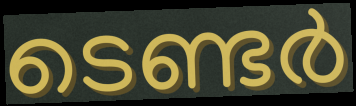
ടെണ്ടർ